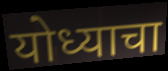
योध्याचा